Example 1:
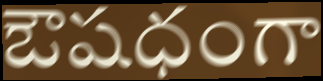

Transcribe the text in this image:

ఔషధంగా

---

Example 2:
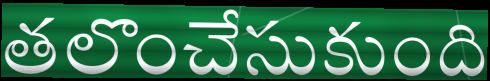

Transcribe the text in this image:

తలొంచేసుకుంది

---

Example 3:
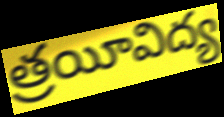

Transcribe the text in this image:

త్రయీవిద్య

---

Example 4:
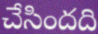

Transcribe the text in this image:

చేసిందది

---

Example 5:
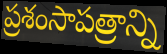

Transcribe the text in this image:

ప్రశంసాపత్రాన్ని